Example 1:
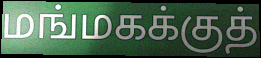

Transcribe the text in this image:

மங்மகக்குத்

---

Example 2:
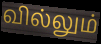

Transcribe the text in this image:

வில்லும்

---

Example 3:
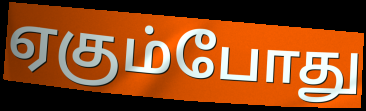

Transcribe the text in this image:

ஏகும்போது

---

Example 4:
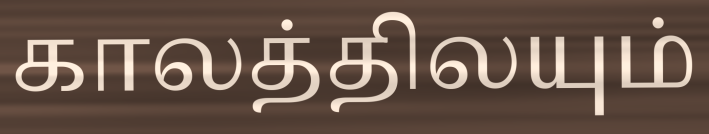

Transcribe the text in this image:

காலத்திலயும்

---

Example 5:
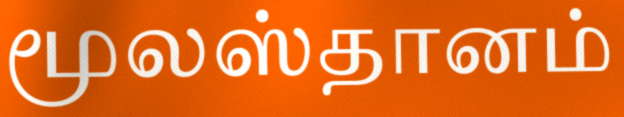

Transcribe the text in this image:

மூலஸ்தானம்